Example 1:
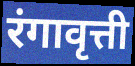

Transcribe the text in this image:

रंगावृत्ती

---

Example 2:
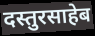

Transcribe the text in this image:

दस्तुरसाहेब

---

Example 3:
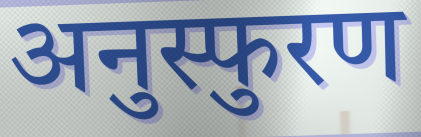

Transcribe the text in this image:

अनुस्फुरण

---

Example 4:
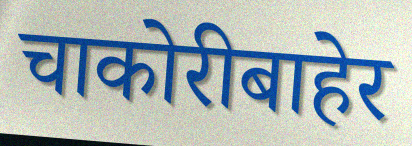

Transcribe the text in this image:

चाकोरीबाहेर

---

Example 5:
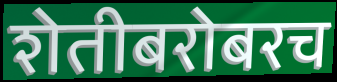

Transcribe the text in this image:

शेतीबरोबरच